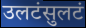
उलटंसुलटं